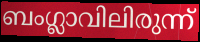
ബംഗ്ലാവിലിരുന്ന്